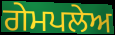
ਗੇਮਪਲੇਅ